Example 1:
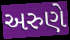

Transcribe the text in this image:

અરુણે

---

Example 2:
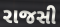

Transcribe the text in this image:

રાજસી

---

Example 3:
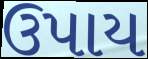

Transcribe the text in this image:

ઉપાય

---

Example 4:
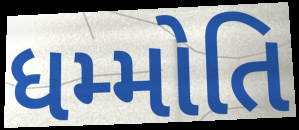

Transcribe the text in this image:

ધમ્મોતિ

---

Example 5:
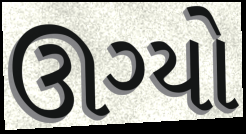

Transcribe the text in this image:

ઊગ્યો